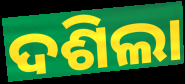
ଦଶିଲା